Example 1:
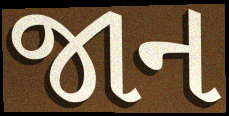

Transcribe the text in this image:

જાન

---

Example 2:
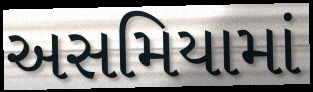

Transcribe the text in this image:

અસમિયામાં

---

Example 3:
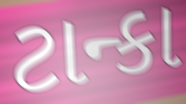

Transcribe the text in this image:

ટાન્કા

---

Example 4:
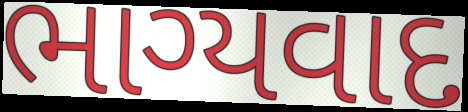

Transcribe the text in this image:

ભાગ્યવાદ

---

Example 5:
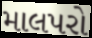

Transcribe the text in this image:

માલપરો